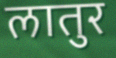
लातुर